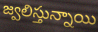
జ్వలిస్తున్నాయి